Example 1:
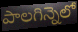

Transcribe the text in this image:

పాలగిన్నెలో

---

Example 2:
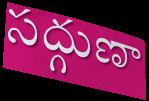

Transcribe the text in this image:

సద్గుణా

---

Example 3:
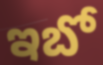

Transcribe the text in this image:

ఇబో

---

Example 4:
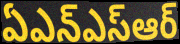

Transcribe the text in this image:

ఏఎన్ఎస్ఆర్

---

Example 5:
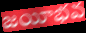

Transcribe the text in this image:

జయీభవ